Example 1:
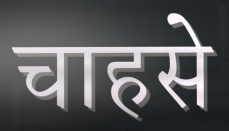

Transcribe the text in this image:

चाहसे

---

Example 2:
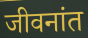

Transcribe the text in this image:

जीवनांत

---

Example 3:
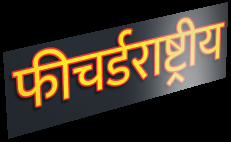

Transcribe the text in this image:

फीचर्डराष्ट्रीय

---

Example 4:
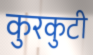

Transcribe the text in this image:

कुरकुटी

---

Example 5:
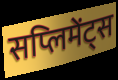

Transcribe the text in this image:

सप्लिमेंट्स